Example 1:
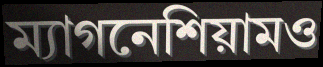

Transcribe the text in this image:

ম্যাগনেশিয়ামও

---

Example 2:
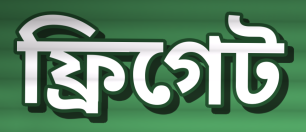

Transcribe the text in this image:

ফ্রিগেট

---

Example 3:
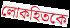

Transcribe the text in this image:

লোকহিতকে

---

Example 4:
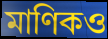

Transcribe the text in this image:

মাণিকও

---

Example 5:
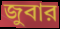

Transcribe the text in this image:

জুবার